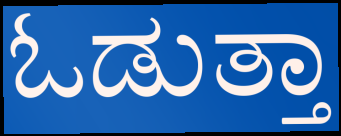
ಓಡುತ್ತಾ